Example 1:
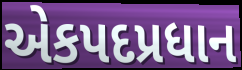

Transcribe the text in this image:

એકપદપ્રધાન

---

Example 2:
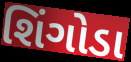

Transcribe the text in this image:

શિંગોડા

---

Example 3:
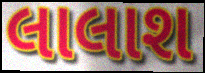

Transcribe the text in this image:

લાલાશ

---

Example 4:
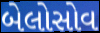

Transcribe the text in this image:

બેલોસોવ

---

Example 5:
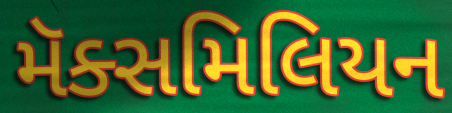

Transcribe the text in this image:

મૅક્સમિલિયન